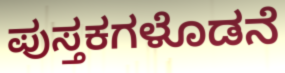
ಪುಸ್ತಕಗಳೊಡನೆ